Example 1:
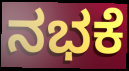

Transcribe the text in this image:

ನಭಕೆ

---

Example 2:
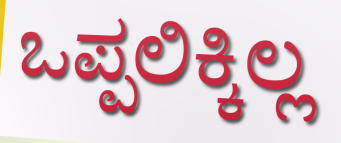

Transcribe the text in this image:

ಒಪ್ಪಲಿಕ್ಕಿಲ್ಲ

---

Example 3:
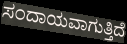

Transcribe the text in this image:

ಸಂದಾಯವಾಗುತ್ತಿದೆ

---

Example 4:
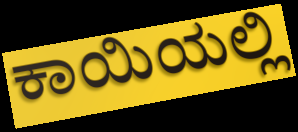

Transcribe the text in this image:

ಕಾಯಿಯಲ್ಲಿ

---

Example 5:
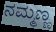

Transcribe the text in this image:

ನಮ್ಮಣ್ಣ